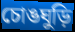
চোঙঘুড়ি